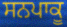
ਸਨਪਾਕੂ